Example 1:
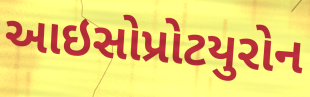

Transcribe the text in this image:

આઇસોપ્રોટયુરોન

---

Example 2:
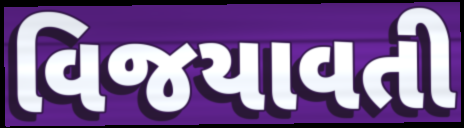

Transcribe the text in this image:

વિજયાવતી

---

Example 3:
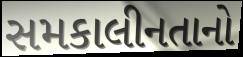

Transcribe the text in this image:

સમકાલીનતાનો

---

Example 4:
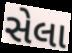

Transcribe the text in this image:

સેલા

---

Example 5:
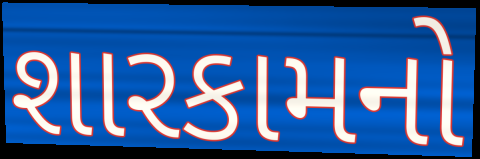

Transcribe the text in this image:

શારકામનો